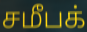
சமீபக்